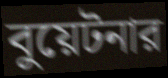
বুয়েটনার